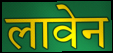
लावेन